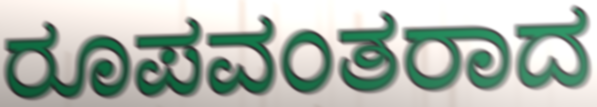
ರೂಪವಂತರಾದ